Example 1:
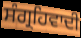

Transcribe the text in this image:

ਸੰਗ੍ਰਹਿਵਾਦੀ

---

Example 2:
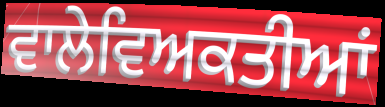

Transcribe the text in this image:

ਵਾਲੇਵਿਅਕਤੀਆਂ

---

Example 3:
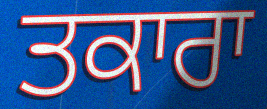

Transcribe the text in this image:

ਤਕਾਰਾ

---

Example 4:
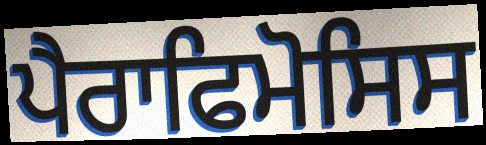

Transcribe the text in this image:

ਪੈਰਾਫਿਮੋਸਿਸ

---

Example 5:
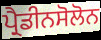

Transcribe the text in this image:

ਪ੍ਰੈਡੀਨਸੋਲੋਨ